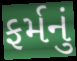
ફર્મનું